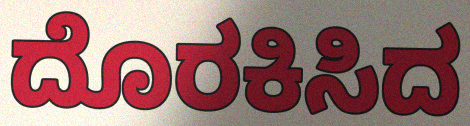
ದೊರಕಿಸಿದ